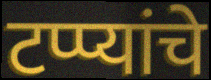
टप्प्यांचे